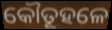
କୌତୂହଳେ